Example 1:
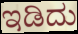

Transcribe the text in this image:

ಇಡಿದು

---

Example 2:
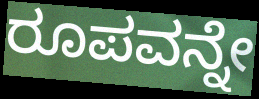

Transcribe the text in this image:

ರೂಪವನ್ನೇ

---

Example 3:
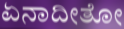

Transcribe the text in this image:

ಏನಾದೀತೋ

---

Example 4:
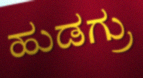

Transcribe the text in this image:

ಹುಡಗ್ರು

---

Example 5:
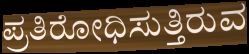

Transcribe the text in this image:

ಪ್ರತಿರೋಧಿಸುತ್ತಿರುವ